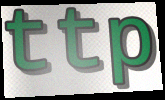
ttp